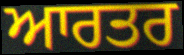
ਆਰਤਰ